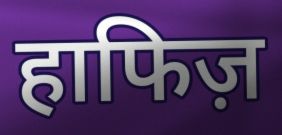
हाफिज़